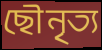
ছৌনৃত্য